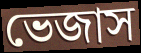
ভেজাস